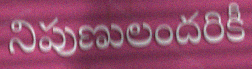
నిపుణులందరికీ